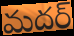
మదర్